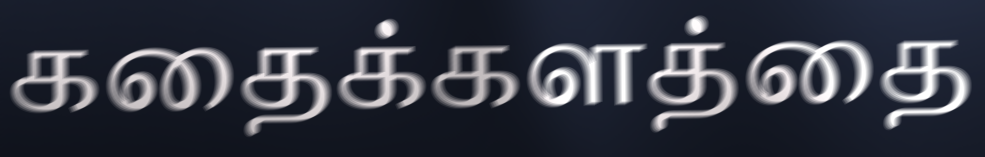
கதைக்களத்தை